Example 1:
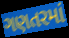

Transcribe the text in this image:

ગણતરમાં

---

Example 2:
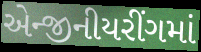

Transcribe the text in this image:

એન્જીનીયરીંગમાં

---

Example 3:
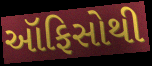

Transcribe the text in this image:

ઑફિસોથી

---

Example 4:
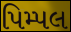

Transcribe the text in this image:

પિમ્પલ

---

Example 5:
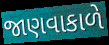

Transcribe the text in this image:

જાણવાકાળે